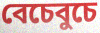
বেচেবুচে